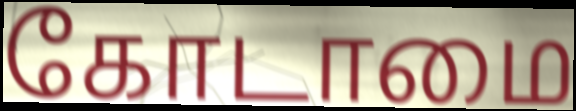
கோடாமை